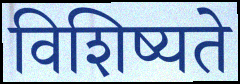
विशिष्यते